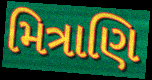
મિત્રાણિ